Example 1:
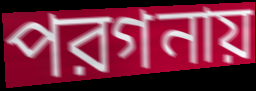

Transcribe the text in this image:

পরগনায়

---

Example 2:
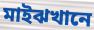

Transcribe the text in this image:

মাইঝখানে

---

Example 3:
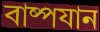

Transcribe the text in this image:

বাষ্পযান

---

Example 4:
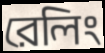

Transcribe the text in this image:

রেলিং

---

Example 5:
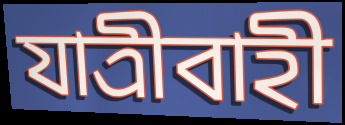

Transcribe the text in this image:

যাত্রীবাহী